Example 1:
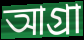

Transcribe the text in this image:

আগ্ৰা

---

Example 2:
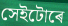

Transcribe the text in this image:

সেইটোৰে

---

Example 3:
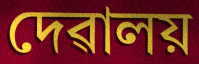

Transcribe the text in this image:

দেৱালয়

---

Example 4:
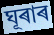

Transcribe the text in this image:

ঘূৰাৰ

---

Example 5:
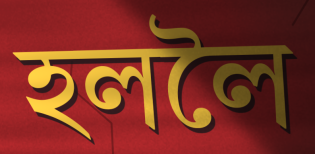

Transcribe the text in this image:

হললৈ